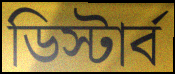
ডিস্টার্ব